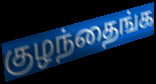
குழந்தைங்க